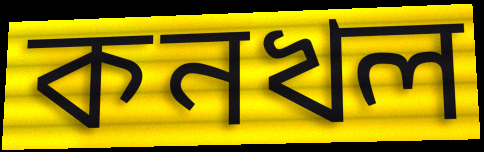
কনখল